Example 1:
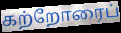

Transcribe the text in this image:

கற்றோரைப்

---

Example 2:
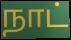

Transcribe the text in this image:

நாட்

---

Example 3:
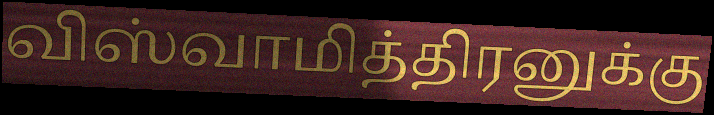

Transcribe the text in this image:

விஸ்வாமித்திரனுக்கு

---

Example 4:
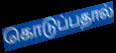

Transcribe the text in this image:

கொடுப்பதால்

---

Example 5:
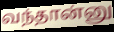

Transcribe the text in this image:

வந்தான்னு